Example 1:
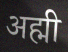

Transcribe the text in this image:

अह्मी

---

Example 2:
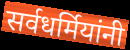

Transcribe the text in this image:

सर्वधर्मियांनी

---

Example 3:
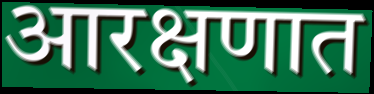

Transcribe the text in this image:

आरक्षणात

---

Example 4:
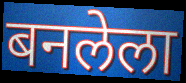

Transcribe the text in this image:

बनलेला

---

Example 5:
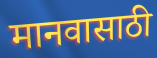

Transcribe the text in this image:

मानवासाठी